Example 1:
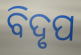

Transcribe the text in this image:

ବିଦୃପ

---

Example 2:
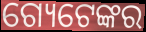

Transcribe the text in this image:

ଗ୍ୟେଟେଙ୍କର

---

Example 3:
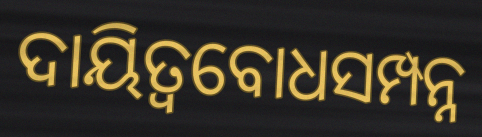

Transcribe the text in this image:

ଦାୟିତ୍ୱବୋଧସମ୍ପନ୍ନ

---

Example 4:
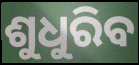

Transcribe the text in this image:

ଶୁଧୁରିବ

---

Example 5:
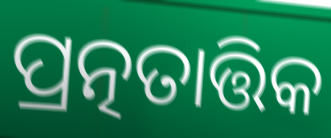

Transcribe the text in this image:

ପ୍ରତ୍ନତାତ୍ତିକ